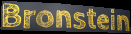
Bronstein